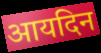
आयदिन